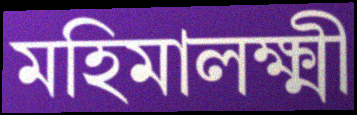
মহিমালক্ষ্মী